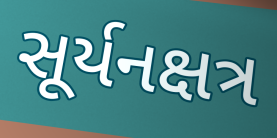
સૂર્યનક્ષત્ર